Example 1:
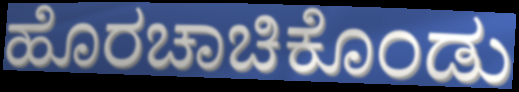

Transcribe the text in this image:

ಹೊರಚಾಚಿಕೊಂಡು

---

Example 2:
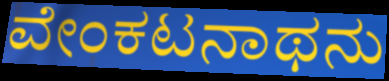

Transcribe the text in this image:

ವೇಂಕಟನಾಥನು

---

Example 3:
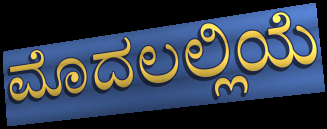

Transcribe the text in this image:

ಮೊದಲಲ್ಲಿಯೆ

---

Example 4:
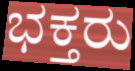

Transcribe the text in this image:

ಭಕ್ತರು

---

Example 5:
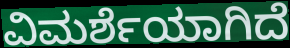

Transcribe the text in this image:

ವಿಮರ್ಶೆಯಾಗಿದೆ